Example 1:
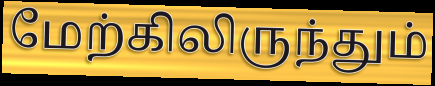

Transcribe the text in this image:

மேற்கிலிருந்தும்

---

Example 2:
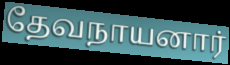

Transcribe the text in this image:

தேவநாயனார்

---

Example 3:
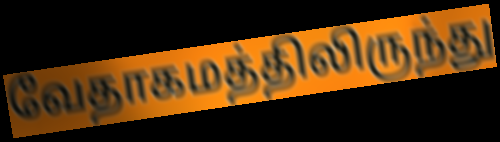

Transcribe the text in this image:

வேதாகமத்திலிருந்து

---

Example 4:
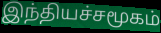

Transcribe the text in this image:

இந்தியச்சமூகம்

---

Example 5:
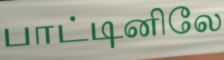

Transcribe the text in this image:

பாட்டினிலே